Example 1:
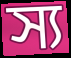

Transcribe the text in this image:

স্য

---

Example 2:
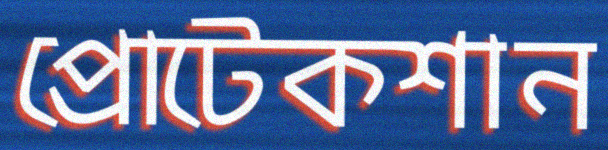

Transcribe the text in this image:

প্রোটেকশান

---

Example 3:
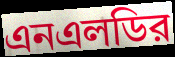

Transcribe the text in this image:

এনএলডির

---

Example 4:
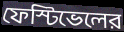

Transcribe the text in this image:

ফেস্টিভেলের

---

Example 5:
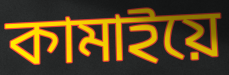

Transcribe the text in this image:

কামাইয়ে